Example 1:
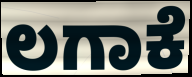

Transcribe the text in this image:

ಲಗಾಕೆ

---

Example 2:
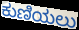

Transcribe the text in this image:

ಕುಣಿಯಲು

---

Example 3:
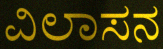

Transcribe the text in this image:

ವಿಲಾಸನ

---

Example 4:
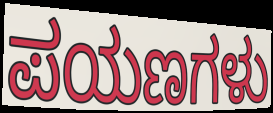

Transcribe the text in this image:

ಪಯಣಗಳು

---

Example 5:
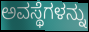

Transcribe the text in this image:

ಅವಸ್ಥೆಗಳನ್ನು